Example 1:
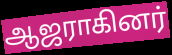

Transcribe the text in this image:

ஆஜராகினர்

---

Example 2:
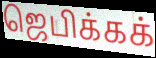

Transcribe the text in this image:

ஜெபிக்கக்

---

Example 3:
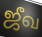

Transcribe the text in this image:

ஜீவ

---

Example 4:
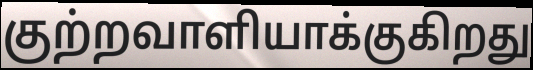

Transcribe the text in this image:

குற்றவாளியாக்குகிறது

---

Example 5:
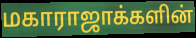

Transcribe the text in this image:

மகாராஜாக்களின்